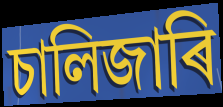
চালিজাৰি